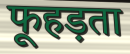
फूहड़ता